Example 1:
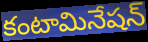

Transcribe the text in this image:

కంటామినేషన్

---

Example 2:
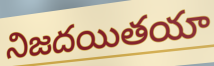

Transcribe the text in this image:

నిజదయితయా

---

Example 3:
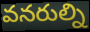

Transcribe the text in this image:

వనరుల్ని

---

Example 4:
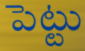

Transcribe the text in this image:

పెట్టు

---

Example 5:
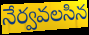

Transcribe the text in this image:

నేర్వవలసిన